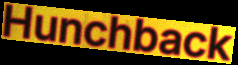
Hunchback